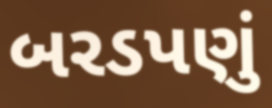
બરડપણું